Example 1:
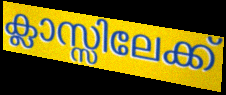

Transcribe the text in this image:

ക്ലാസ്സിലേക്ക്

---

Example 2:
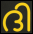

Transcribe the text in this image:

ദി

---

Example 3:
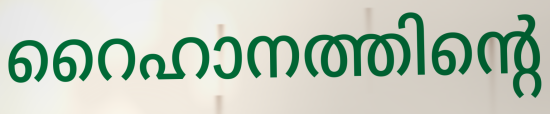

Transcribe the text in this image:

റൈഹാനത്തിന്റെ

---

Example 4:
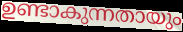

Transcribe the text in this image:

ഉണ്ടാകുന്നതായും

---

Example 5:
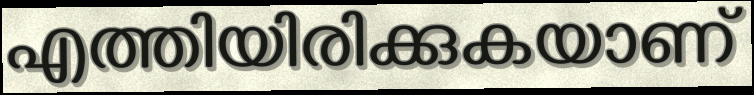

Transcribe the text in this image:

എത്തിയിരിക്കുകയാണ്